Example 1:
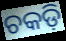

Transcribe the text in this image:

ଚକଡ଼ି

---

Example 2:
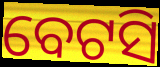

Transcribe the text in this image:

ବେଟସି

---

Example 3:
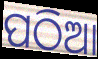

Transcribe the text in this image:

ପଠିଆ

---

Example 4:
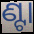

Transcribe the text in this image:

ଣ୍ଟା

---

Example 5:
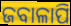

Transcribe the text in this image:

ଜବାଳାପି